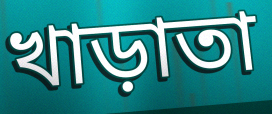
খাড়াতা